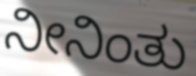
ನೀನಿಂತು